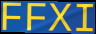
FFXI